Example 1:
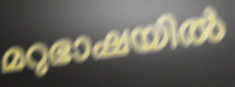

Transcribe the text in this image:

മറുഭാഷയിൽ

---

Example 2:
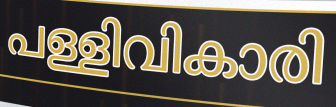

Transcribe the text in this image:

പള്ളിവികാരി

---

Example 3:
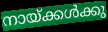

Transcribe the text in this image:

നായ്ക്കൾക്കു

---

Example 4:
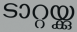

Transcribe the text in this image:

ടാറ്റയ്ക്കു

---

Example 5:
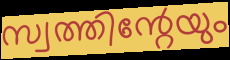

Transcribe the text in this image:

സ്വത്തിന്റേയും